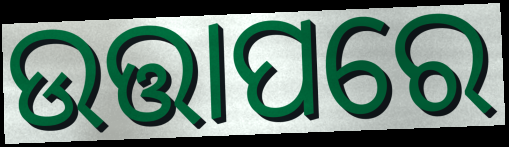
ଉତ୍ତାପରେ